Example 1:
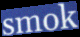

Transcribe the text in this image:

smok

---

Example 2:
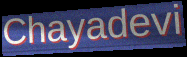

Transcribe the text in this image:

Chayadevi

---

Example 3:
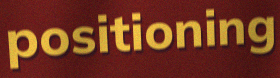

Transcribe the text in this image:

positioning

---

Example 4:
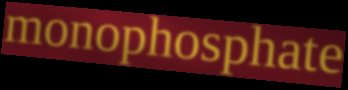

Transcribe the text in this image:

monophosphate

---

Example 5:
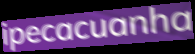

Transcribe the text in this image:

ipecacuanha